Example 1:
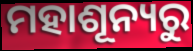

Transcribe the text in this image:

ମହାଶୂନ୍ୟରୁ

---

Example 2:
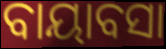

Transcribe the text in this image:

ବାୟାବସା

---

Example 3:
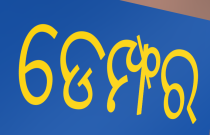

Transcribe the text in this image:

ଡେମ୍ଫର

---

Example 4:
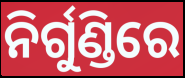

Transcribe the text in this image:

ନିର୍ଗୁଣ୍ଡିରେ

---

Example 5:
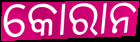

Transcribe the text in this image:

କୋରାନ